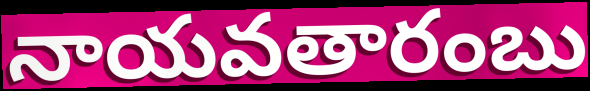
నాయవతారంబు